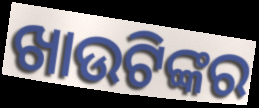
ଖାଉଟିଙ୍କର